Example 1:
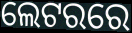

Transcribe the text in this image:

ଲେଟରରେ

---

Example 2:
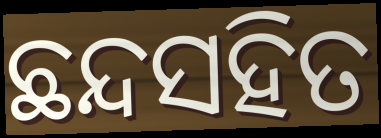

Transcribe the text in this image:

ଛନ୍ଦସହିତ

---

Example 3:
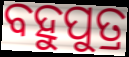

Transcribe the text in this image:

ବହୁପୁତ୍ର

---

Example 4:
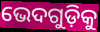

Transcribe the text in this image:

ଭେଦଗୁଡ଼ିକୁ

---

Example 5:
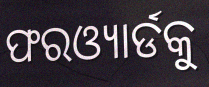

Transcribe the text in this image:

ଫରଓ୍ୟାର୍ଡକୁ